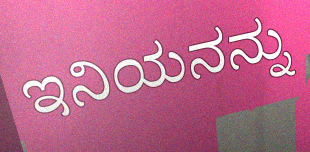
ಇನಿಯನನ್ನು